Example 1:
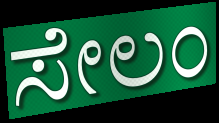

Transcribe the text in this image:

ಸೇಲಂ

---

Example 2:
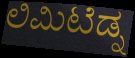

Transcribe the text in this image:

ಲಿಮಿಟೆಡ್ನ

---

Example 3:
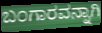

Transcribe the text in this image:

ಬಂಗಾರವನ್ನಾಗಿ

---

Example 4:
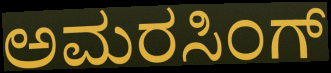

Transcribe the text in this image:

ಅಮರಸಿಂಗ್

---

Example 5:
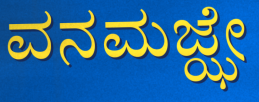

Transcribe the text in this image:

ವನಮಜ್ಝೇ